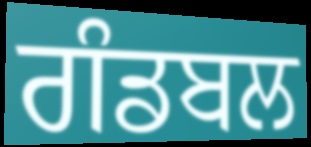
ਗੰਡਬਲ